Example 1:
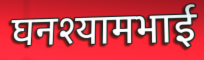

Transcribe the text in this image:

घनश्यामभाई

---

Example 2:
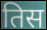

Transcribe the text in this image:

तिस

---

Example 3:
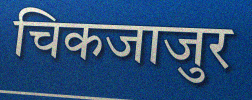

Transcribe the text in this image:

चिकजाजुर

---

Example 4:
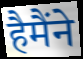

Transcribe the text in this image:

हैमैंने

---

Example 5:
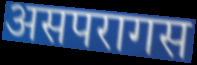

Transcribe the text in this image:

असपरागस